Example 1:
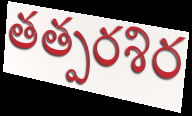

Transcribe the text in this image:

తత్పరశిర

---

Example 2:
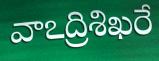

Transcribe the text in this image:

వాఽద్రిశిఖరే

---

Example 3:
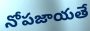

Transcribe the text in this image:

నోపజాయతే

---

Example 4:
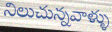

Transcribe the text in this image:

నిలుచున్నవాళ్ళు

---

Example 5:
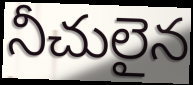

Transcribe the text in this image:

నీచులైన